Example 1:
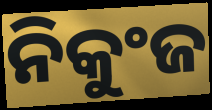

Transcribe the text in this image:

ନିକୁଂଜ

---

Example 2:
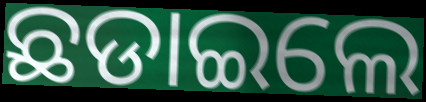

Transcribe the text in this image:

ଛଡାଇଲେ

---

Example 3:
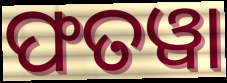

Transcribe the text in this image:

ଫତୱା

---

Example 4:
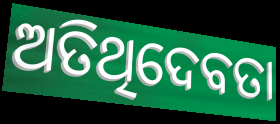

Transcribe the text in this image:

ଅତିଥିଦେବତା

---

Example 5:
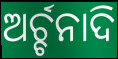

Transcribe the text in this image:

ଅର୍ଚ୍ଚନାଦି